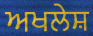
ਅਖਲੇਸ਼